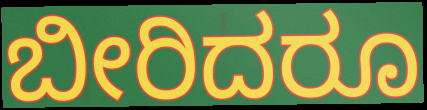
ಬೀರಿದರೂ